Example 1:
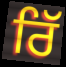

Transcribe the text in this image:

ਰਿੱ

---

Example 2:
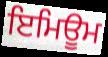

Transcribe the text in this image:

ਇਮਿਊਮ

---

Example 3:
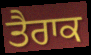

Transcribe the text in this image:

ਤੈਰਾਕ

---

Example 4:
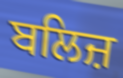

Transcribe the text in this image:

ਬਲਿਜ਼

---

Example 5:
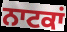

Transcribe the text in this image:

ਨਾਟਕਾਂ